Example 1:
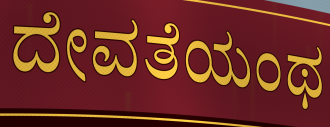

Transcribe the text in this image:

ದೇವತೆಯಂಥ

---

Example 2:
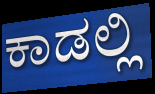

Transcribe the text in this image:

ಕಾಡಲ್ಲಿ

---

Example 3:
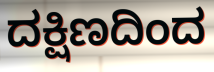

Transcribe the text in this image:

ದಕ್ಷಿಣದಿಂದ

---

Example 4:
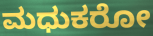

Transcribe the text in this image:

ಮಧುಕರೋ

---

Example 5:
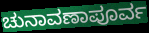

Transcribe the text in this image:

ಚುನಾವಣಾಪೂರ್ವ